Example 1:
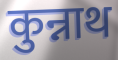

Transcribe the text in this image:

कुन्नाथ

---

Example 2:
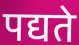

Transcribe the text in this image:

पद्यते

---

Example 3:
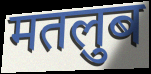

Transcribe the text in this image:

मतलुब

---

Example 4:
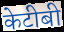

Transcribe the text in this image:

केटीबी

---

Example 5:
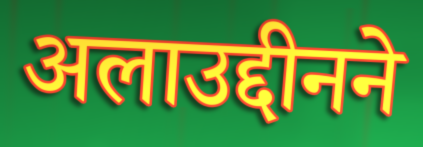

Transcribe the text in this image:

अलाउद्दीनने